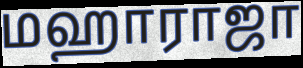
மஹாராஜா